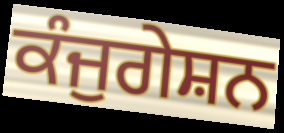
ਕੰਜੁਗੇਸ਼ਨ